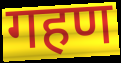
गहण